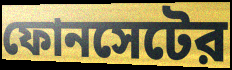
ফোনসেটের